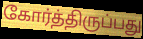
கோர்த்திருப்பது